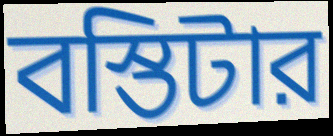
বস্তিটার